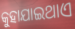
କୁହାଯାଇଥାଏ